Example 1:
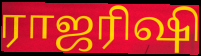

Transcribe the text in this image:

ராஜரிஷி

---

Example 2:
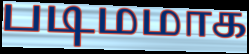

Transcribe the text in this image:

படிமமாக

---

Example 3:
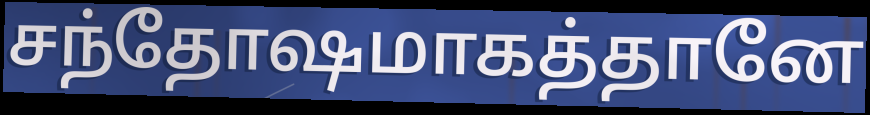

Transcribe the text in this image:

சந்தோஷமாகத்தானே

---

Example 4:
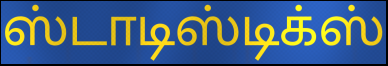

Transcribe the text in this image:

ஸ்டாடிஸ்டிக்ஸ்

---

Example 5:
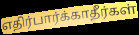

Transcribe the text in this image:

எதிர்பார்க்காதீர்கள்